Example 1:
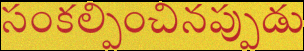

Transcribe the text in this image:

సంకల్పించినప్పుడు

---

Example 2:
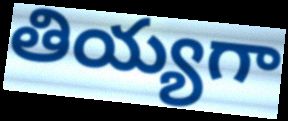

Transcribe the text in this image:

తియ్యగా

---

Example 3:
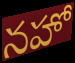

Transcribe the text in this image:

నహో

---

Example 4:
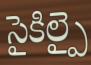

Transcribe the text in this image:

సైకిల్పై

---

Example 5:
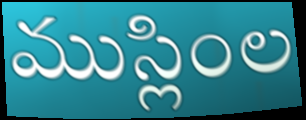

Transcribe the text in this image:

ముస్లింల